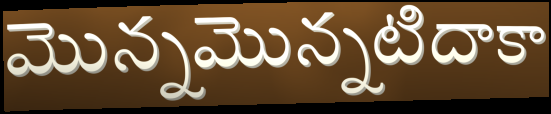
మొన్నమొన్నటిదాకా